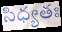
సిధ్యతః